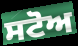
ਸਟੋਅ